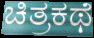
ಚಿತ್ರಕಥೆ